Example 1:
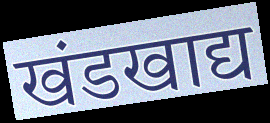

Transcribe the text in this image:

खंडखाद्य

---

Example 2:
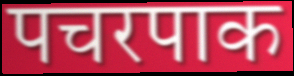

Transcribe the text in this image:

पचरपाक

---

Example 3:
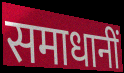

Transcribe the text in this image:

समाधानीं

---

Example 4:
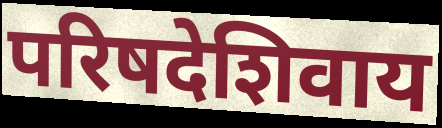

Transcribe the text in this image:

परिषदेशिवाय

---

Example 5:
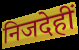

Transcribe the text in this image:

निजदेहीं